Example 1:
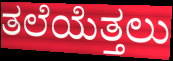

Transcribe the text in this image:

ತಲೆಯೆತ್ತಲು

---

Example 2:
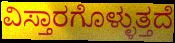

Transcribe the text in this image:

ವಿಸ್ತಾರಗೊಳ್ಳುತ್ತದೆ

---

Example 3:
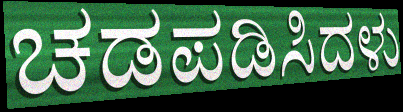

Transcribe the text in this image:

ಚಡಪಡಿಸಿದಳು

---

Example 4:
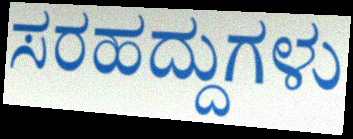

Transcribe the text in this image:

ಸರಹದ್ದುಗಳು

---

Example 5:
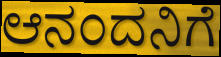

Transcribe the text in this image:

ಆನಂದನಿಗೆ